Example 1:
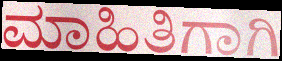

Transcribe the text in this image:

ಮಾಹಿತಿಗಾಗಿ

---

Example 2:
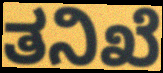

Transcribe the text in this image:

ತನಿಖೆ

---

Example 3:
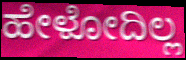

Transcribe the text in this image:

ಹೇಳೋದಿಲ್ಲ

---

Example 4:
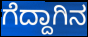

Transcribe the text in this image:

ಗೆದ್ದಾಗಿನ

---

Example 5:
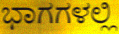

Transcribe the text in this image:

ಭಾಗಗಳಲ್ಲಿ